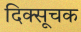
दिक्सूचक